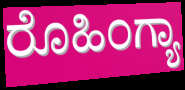
ರೊಹಿಂಗ್ಯಾ